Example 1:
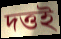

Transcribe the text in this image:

দত্তই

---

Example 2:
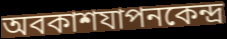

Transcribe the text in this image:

অবকাশযাপনকেন্দ্র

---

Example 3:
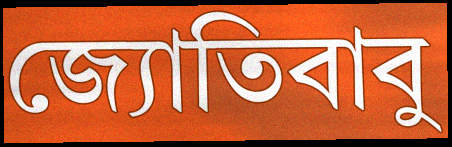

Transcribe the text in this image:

জ্যোতিবাবু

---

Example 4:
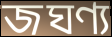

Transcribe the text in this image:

জঘণ্য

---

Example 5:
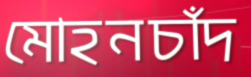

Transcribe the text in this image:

মোহনচাঁদ